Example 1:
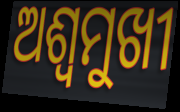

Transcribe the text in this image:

ଅଶ୍ୱମୁଖୀ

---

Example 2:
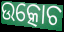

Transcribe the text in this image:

ଉତ୍କୋଚ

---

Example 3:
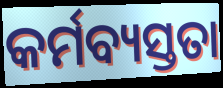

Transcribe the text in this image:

କର୍ମବ୍ୟସ୍ତତା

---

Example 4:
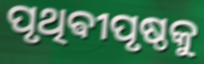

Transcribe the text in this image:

ପୃଥିଵୀପୃଷ୍ଠକୁ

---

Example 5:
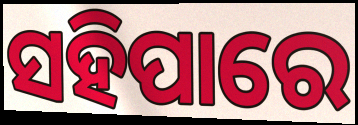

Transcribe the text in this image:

ସହିପାରେ